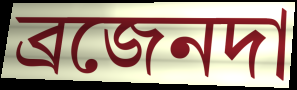
ব্রজেনদা